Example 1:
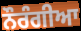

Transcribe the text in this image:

ਨੌਰੰਗੀਆ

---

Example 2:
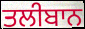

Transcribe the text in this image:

ਤਲੀਬਾਨ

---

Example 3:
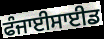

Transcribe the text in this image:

ਫੰਜਾਈਸਾਈਡ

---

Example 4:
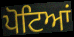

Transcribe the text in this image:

ਪੋਟਿਆਂ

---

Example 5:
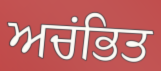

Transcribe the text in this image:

ਅਚਂਭਿਤ